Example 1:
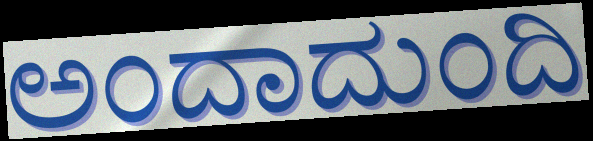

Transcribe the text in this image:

ಅಂದಾದುಂದಿ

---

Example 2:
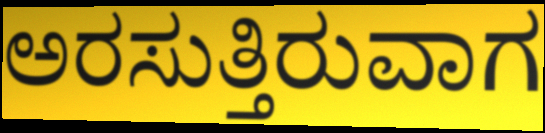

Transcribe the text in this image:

ಅರಸುತ್ತಿರುವಾಗ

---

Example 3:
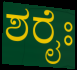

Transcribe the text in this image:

ಶರೈಃ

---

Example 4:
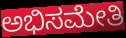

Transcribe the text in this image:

ಅಭಿಸಮೇತಿ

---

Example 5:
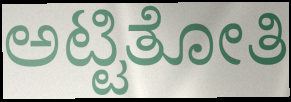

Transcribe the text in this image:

ಅಟ್ಟಿತೋತಿ